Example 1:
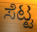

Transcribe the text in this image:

ಸೆಟ್ಟ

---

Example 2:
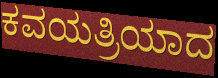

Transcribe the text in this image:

ಕವಯತ್ರಿಯಾದ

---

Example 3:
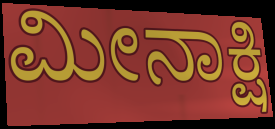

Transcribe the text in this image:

ಮೀನಾಕ್ಷಿ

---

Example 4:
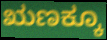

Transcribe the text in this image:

ಋಣಕ್ಕೂ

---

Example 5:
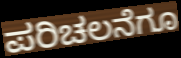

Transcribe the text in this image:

ಪರಿಚಲನೆಗೂ